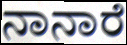
ನಾನಾರೆ